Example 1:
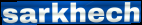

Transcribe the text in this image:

sarkhech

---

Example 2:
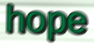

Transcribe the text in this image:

hope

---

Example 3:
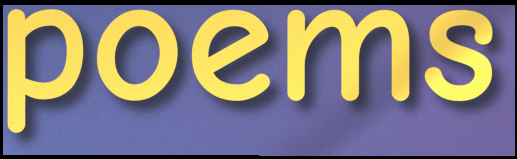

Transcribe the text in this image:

poems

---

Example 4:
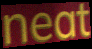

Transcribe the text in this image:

neat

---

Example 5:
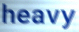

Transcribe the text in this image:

heavy